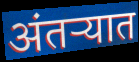
अंतऱ्यात